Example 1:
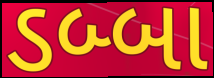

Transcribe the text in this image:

ડબ્બા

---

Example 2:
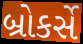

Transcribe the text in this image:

બ્રોકર્સે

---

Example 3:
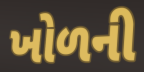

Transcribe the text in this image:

ખોળની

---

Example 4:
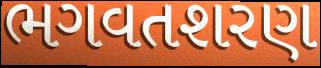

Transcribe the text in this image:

ભગવતશરણ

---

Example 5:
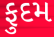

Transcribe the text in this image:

ફુદમ